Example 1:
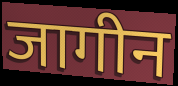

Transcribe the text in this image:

जागीन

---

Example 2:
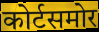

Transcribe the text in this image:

कोर्टसमोर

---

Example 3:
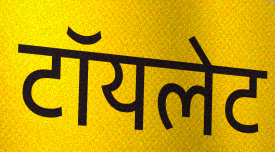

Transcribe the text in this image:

टॉयलेट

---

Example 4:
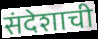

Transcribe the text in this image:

संदेशाची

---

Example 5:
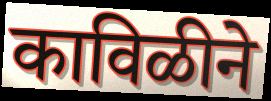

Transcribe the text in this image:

काविळीने